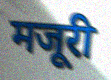
मजूरी